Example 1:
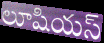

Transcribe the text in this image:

లూషియస్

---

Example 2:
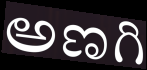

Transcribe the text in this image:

అణగి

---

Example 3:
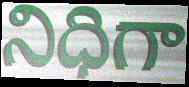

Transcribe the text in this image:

నిధిగా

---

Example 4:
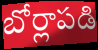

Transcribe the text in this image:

బోర్లాపడి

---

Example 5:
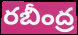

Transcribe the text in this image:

రబీంద్ర